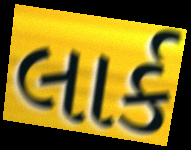
લાર્ક